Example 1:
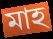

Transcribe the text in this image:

মাহ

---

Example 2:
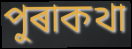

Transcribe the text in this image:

পুৰাকথা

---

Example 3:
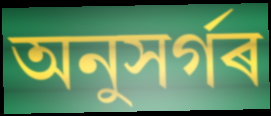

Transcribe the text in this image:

অনুসৰ্গৰ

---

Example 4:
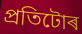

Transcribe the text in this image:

প্ৰতিটোৰ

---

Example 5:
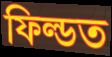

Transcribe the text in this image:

ফিল্ডত